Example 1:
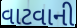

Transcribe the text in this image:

વાટવાની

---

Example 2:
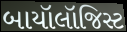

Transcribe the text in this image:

બાયૉલૉજિસ્ટ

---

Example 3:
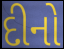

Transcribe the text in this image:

દીનો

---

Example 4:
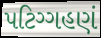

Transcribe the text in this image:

પટિગ્ગહણં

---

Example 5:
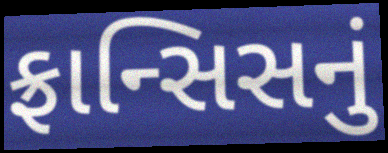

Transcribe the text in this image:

ફ્રાન્સિસનું